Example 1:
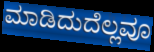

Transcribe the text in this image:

ಮಾಡಿದುದೆಲ್ಲವೂ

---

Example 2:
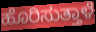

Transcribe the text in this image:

ಹೊರಿಸುತ್ತಾಳೆ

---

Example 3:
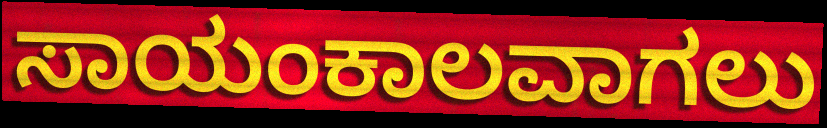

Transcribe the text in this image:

ಸಾಯಂಕಾಲವಾಗಲು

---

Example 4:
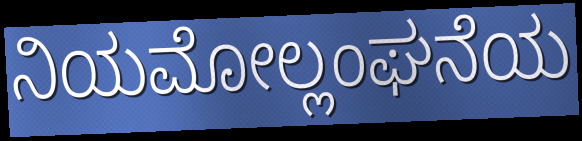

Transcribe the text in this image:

ನಿಯಮೋಲ್ಲಂಘನೆಯ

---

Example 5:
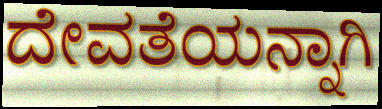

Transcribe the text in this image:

ದೇವತೆಯನ್ನಾಗಿ